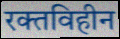
रक्तविहीन